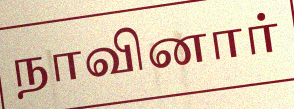
நாவினார்